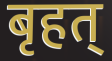
बृहत्